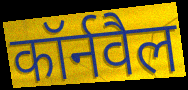
कॉर्नवैल